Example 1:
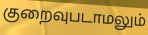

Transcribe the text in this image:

குறைவுபடாமலும்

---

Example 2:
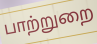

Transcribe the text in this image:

பாற்றுறை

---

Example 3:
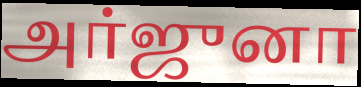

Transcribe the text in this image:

அர்ஜுனா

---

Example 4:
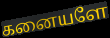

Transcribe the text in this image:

கனையளே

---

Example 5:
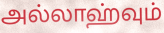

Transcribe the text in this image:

அல்லாஹ்வும்